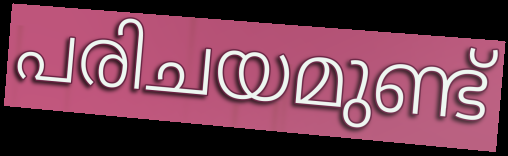
പരിചയമുണ്ട്